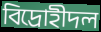
বিদ্রোহীদল